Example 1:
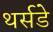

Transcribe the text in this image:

थर्सडे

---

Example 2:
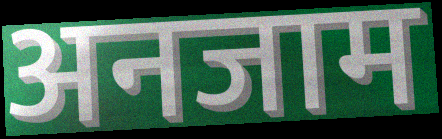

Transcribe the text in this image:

अनजाम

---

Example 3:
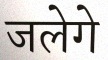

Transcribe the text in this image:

जलेगे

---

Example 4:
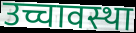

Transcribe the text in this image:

उच्चावस्था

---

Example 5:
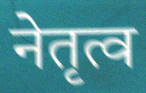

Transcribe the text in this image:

नेतृत्व